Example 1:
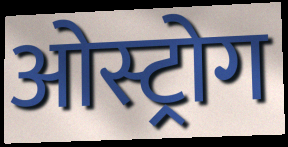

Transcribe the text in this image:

ओस्ट्रोग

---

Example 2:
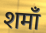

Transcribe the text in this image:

शमाँ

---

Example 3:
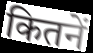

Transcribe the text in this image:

कितनें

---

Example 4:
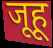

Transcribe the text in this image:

जूहू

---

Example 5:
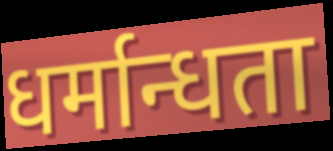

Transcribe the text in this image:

धर्मान्धता